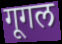
गूगल